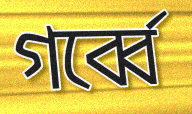
গর্ব্বে